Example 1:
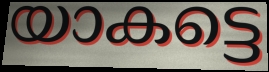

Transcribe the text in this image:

യാകട്ടെ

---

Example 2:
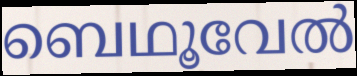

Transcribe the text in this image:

ബെഥൂവേൽ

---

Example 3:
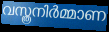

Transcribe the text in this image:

വസ്ത്രനിർമ്മാണ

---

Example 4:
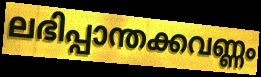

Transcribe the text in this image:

ലഭിപ്പാന്തക്കവണ്ണം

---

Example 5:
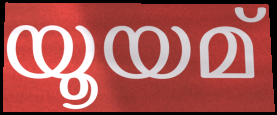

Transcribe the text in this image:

യൂയമ്